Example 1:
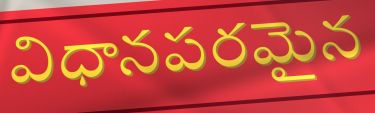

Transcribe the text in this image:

విధానపరమైన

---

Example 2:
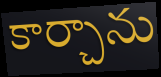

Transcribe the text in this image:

కార్చాను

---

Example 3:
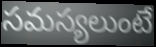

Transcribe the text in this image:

సమస్యలుంటే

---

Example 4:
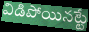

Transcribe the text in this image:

విడిపోయినట్టే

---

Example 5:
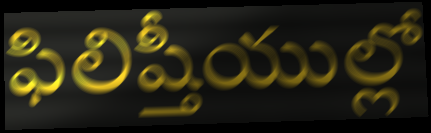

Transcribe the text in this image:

ఫిలిష్తీయుల్లో